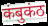
कंबुकंठ